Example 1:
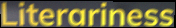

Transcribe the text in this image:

Literariness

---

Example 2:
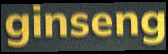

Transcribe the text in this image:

ginseng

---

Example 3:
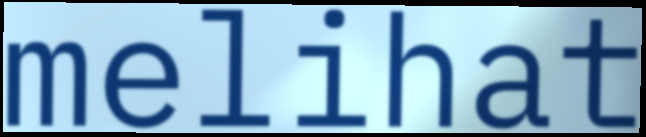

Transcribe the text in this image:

melihat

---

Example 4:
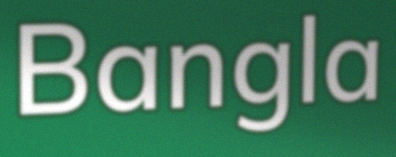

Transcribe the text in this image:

Bangla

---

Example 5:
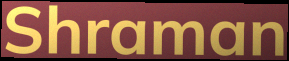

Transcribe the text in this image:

Shraman